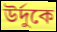
উর্দুকে